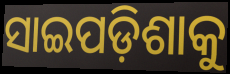
ସାଇପଡ଼ିଶାକୁ